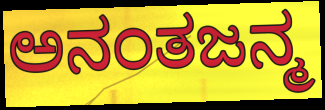
ಅನಂತಜನ್ಮ